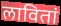
लावितां